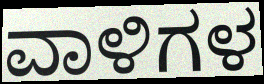
ವಾಳಿಗಳ